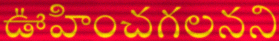
ఊహించగలనని